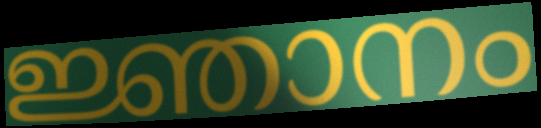
ജ്ഞാനം